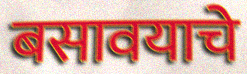
बसावयाचे